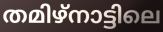
തമിഴ്നാട്ടിലെ